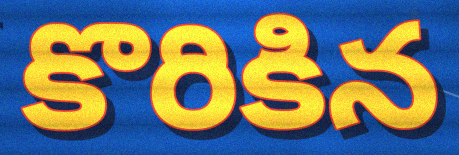
కొరికిన